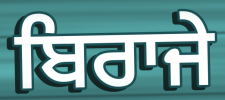
ਬਿਰਾਜੇ